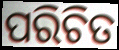
ପରିଚିତ